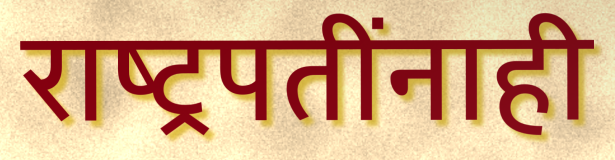
राष्ट्रपतींनाही